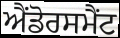
ਐਂਡੋਰਸਮੈਂਟ